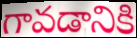
గావడానికి